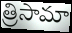
త్రిసామా